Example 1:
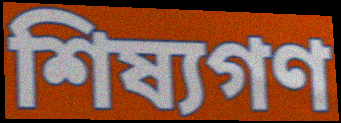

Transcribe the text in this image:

শিষ্যগণ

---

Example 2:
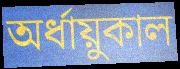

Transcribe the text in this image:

অর্ধায়ুকাল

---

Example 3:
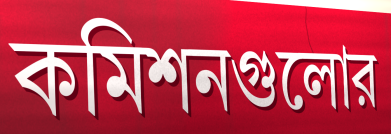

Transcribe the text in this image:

কমিশনগুলোর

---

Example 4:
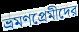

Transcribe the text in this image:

ভ্রমণপ্রেমীদের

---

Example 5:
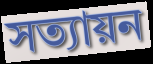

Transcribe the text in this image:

সত্যায়ন